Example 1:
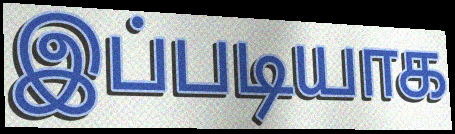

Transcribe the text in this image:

இப்படியாக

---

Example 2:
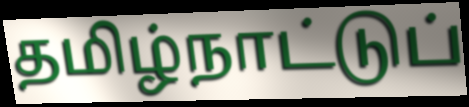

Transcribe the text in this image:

தமிழ்நாட்டுப்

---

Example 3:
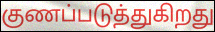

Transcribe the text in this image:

குணப்படுத்துகிறது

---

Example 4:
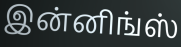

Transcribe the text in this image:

இன்னிங்ஸ்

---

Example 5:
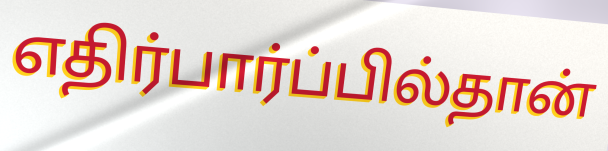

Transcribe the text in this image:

எதிர்பார்ப்பில்தான்